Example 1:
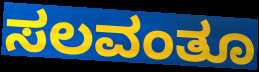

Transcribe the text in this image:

ಸಲವಂತೂ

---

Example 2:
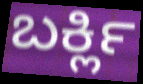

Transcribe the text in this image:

ಬರ್ಕ್ಲಿ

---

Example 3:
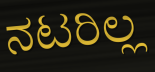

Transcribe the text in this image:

ನಟರಿಲ್ಲ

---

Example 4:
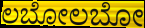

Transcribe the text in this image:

ಲಬೋಲಬೋ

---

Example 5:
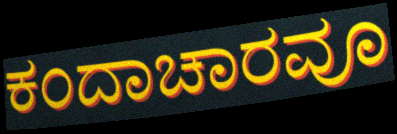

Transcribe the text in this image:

ಕಂದಾಚಾರವೂ